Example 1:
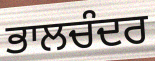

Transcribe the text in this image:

ਭਾਲਚੰਦਰ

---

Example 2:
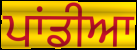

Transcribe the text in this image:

ਪਾਂਡੀਆ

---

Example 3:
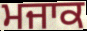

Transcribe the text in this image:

ਮਜਾਕ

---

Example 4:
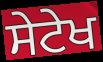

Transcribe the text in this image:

ਸੇਟੇਖ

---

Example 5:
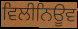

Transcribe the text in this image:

ਵਿਲੀਨਿਊਵ